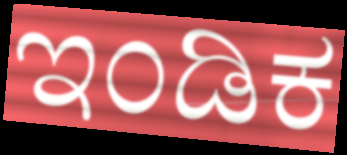
ಇಂಡಿಕ